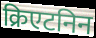
क्रिएटनिन